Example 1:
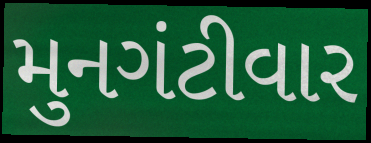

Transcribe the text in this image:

મુનગંટીવાર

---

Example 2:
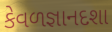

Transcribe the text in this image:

કેવળજ્ઞાનદશા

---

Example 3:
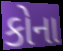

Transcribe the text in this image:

કોના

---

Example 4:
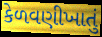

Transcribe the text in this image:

કેળવણીખાતું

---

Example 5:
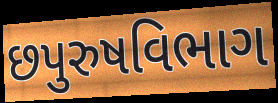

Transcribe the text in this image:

છપુરુષવિભાગ